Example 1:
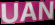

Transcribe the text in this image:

UAN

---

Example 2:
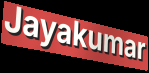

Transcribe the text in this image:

Jayakumar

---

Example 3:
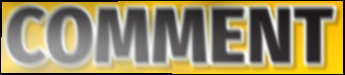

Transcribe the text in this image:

COMMENT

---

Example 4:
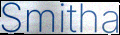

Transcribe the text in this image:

Smitha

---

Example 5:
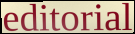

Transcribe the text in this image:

editorial